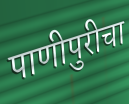
पाणीपुरीचा